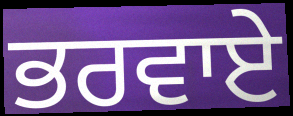
ਭਰਵਾਏ